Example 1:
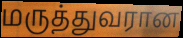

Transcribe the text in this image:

மருத்துவரான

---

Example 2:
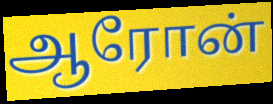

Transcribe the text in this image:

ஆரோன்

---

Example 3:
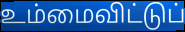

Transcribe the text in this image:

உம்மைவிட்டுப்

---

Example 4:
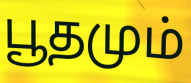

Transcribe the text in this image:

பூதமும்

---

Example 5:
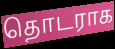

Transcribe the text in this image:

தொடராக